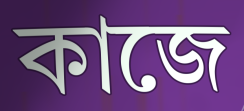
কাজে